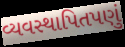
વ્યવસ્થાપિતપણું